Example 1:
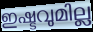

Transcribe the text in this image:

ഇഷ്ടവുമില്ല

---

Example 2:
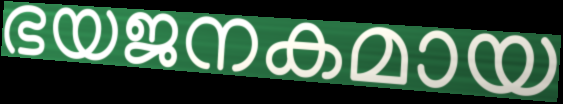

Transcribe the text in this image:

ഭയജനകമായ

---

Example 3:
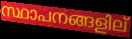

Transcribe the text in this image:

സ്ഥാപനങ്ങളില്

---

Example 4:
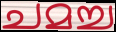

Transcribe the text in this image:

ചമച്ച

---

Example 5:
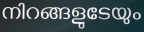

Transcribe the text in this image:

നിറങ്ങളുടേയും